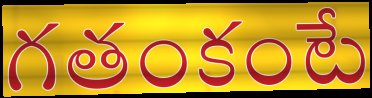
గతంకంటే